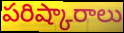
పరిష్కారాలు